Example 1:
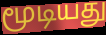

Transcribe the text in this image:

மூடியது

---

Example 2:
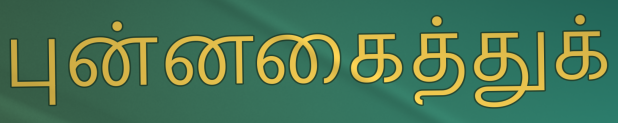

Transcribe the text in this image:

புன்னகைத்துக்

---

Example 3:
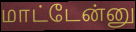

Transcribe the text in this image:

மாட்டேன்னு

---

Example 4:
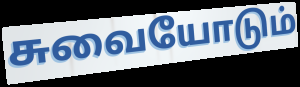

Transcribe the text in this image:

சுவையோடும்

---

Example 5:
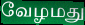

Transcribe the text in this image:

வேழமது